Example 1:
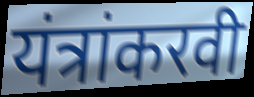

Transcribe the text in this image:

यंत्रांकरवी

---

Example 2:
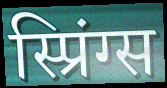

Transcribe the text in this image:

स्प्रिंग्स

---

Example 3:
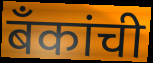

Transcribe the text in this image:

बँकांची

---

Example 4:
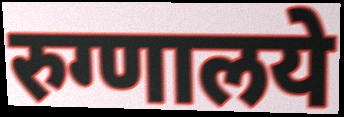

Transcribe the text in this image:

रुग्णालये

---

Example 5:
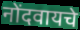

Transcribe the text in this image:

नोंदवायचे